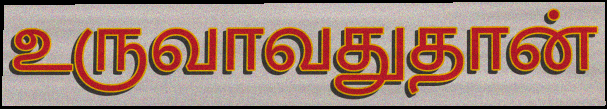
உருவாவதுதான்